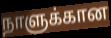
நாளுக்கான